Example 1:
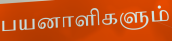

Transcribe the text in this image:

பயனாளிகளும்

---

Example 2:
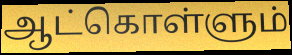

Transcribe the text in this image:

ஆட்கொள்ளும்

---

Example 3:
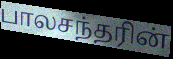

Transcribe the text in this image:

பாலசந்தரின்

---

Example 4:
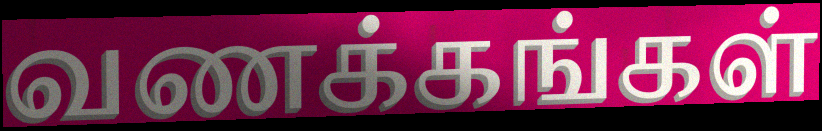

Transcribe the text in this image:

வணக்கங்கள்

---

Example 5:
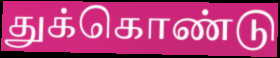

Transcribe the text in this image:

துக்கொண்டு